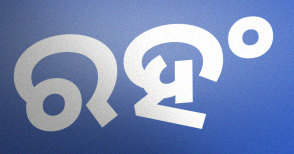
ରହଂ